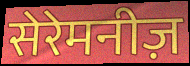
सेरेमनीज़